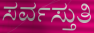
ಸರ್ವಸ್ತುತಿ